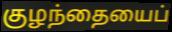
குழந்தையைப்